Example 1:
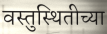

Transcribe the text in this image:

वस्तुस्थितीच्या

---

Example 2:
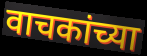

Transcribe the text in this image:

वाचकांच्या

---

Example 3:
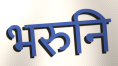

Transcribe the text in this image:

भरुनि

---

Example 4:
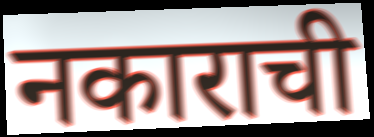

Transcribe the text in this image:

नकाराची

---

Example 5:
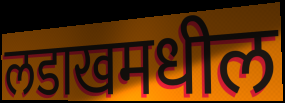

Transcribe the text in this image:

लडाखमधील